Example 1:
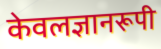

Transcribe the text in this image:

केवलज्ञानरूपी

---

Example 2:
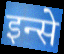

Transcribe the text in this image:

इन्से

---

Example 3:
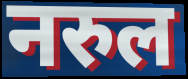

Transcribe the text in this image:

नरुल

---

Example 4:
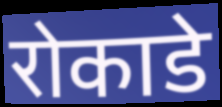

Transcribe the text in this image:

रोकाडे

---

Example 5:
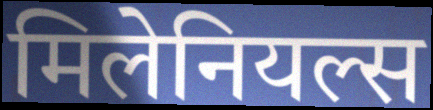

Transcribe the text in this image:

मिलेनियल्स